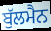
ਬੁੱਲਮੈਨ